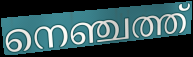
നെഞ്ചത്ത്